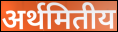
अर्थमितीय